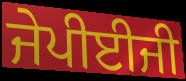
ਜੇਪੀਈਜੀ